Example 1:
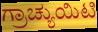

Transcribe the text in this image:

ಗ್ರಾಚ್ಯುಯಿಟಿ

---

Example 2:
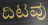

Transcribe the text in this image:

ದಿಟವು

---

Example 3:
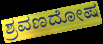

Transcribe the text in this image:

ಶ್ರವಣದೋಷ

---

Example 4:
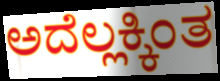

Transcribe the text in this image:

ಅದೆಲ್ಲಕ್ಕಿಂತ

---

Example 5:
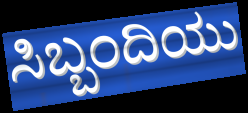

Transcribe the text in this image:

ಸಿಬ್ಬಂದಿಯು